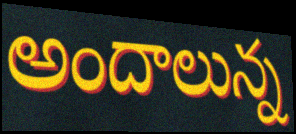
అందాలున్న